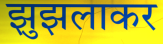
झुझलाकर